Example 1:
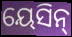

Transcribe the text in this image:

ୟେସିନ୍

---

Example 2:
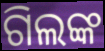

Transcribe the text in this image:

ଗିଲଙ୍କ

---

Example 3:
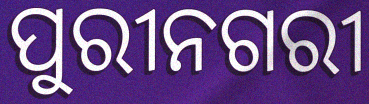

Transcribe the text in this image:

ପୁରୀନଗରୀ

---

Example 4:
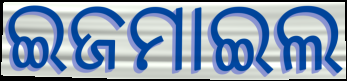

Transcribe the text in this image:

ଇଜମାଇଲ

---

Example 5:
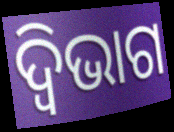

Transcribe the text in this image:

ଦ୍ୱିଭାଗ